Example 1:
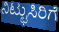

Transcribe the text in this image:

ನಿಟ್ಟುಸಿರಿಗೆ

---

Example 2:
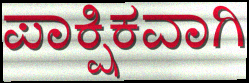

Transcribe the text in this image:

ಪಾಕ್ಷಿಕವಾಗಿ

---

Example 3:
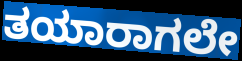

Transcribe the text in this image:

ತಯಾರಾಗಲೇ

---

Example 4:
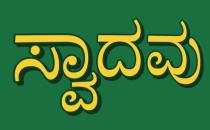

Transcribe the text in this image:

ಸ್ವಾದವು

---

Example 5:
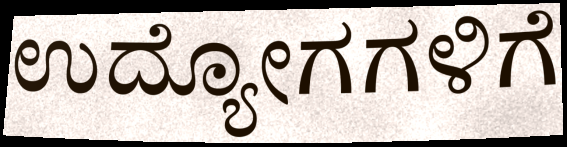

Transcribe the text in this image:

ಉದ್ಯೋಗಗಳಿಗೆ